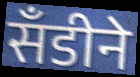
सॅंडीने